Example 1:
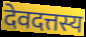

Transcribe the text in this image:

देवदत्तस्य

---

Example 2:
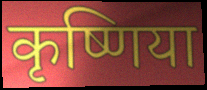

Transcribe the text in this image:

कृष्णिया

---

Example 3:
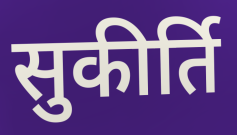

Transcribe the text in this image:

सुकीर्ति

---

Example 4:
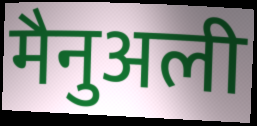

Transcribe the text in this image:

मैनुअली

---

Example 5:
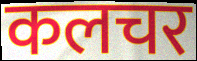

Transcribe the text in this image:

कलचर